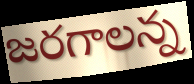
జరగాలన్న